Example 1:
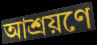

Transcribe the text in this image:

আশ্রয়ণে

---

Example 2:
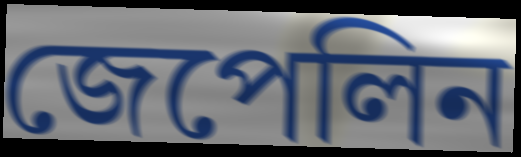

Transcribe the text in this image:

জেপেলিন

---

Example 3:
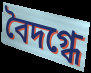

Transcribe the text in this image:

বৈদগ্ধে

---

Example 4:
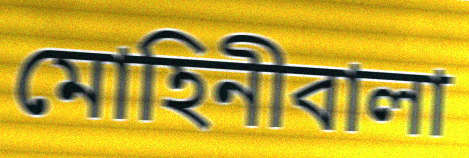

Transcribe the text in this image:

মোহিনীবালা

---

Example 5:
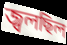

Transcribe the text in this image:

জ্বলছিল